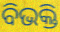
ବିଭକ୍ତି